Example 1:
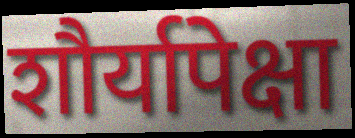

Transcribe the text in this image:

शौर्यापेक्षा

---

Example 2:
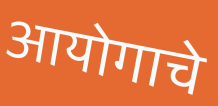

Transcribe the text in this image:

आयोगाचे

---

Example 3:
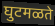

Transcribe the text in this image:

घुटमळते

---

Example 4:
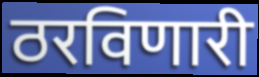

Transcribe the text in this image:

ठरविणारी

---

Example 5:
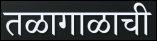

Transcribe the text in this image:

तळागाळाची